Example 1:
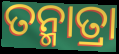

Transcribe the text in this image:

ତନ୍ମାତ୍ରା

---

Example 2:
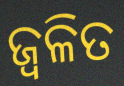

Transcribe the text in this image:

ଜ୍ୱଳିତ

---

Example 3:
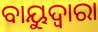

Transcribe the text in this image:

ବାୟୁଦ୍ୱାରା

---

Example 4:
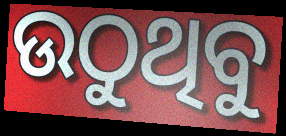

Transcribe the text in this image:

ଉଠୁଥିବୁ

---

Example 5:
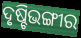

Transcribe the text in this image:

ଦୃଷ୍ଚିଭଙ୍ଗୀର